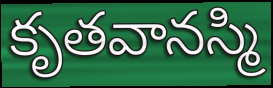
కృతవానస్మి